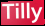
Tilly